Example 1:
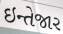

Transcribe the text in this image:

ઇન્તેજાર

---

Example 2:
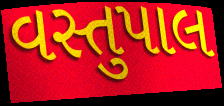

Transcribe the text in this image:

વસ્તુપાલ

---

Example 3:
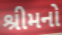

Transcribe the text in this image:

શ્રીમનો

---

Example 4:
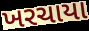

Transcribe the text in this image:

ખરચાયા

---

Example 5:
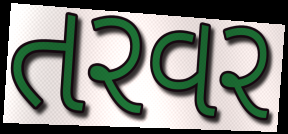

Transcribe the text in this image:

તરવર